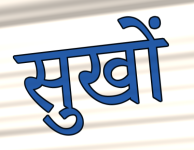
सुखों